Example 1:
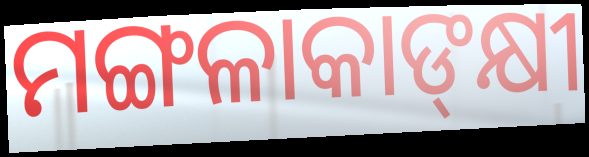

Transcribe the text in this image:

ମଙ୍ଗଳାକାଙ୍‍କ୍ଷୀ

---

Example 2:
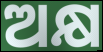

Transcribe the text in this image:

ଅକ୍ଷ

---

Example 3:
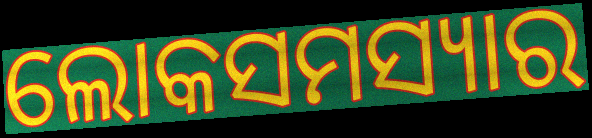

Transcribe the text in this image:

ଲୋକସମସ୍ୟାର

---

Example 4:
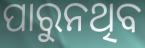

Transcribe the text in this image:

ପାରୁନଥିବ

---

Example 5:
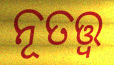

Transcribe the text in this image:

ନୂତତ୍ତ୍ଵ